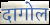
दागोल